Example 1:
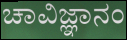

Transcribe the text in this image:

ಚಾವಿಜ್ಞಾನಂ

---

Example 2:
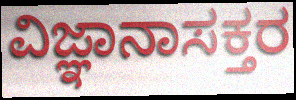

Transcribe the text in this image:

ವಿಜ್ಞಾನಾಸಕ್ತರ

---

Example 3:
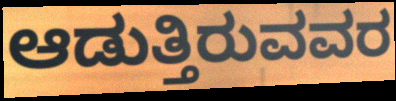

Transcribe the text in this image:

ಆಡುತ್ತಿರುವವರ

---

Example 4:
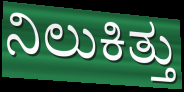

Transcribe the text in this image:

ನಿಲುಕಿತ್ತು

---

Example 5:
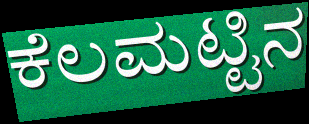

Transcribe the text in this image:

ಕೆಲಮಟ್ಟಿನ